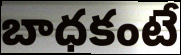
బాధకంటే